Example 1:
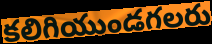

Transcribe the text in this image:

కలిగియుండగలరు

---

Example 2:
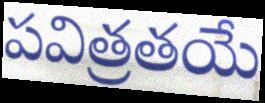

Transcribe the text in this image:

పవిత్రతయే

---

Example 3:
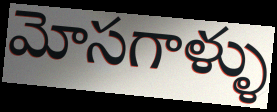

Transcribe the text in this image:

మోసగాళ్ళు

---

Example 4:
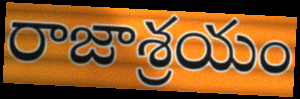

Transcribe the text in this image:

రాజాశ్రయం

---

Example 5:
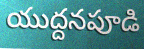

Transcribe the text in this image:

యుద్దనపూడి